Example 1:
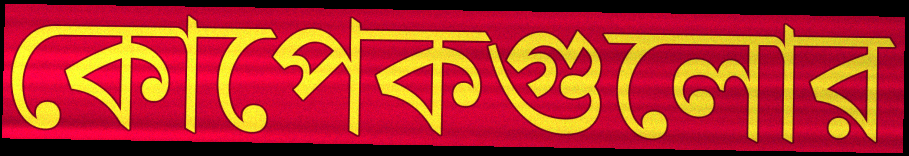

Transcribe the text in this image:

কোপেকগুলোর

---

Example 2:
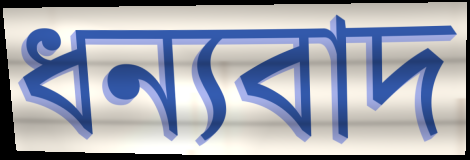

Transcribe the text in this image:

ধন্যবাদ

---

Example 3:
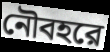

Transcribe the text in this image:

নৌবহরে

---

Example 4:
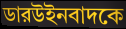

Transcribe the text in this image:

ডারউইনবাদকে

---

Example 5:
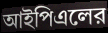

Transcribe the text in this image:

আইপিএলের